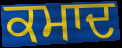
ਕਮਾਦ